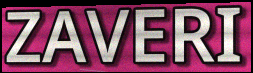
ZAVERI